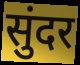
सुंदर